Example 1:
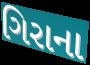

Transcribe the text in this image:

ગિરાના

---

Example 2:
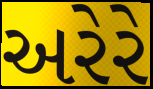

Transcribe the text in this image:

અરેરે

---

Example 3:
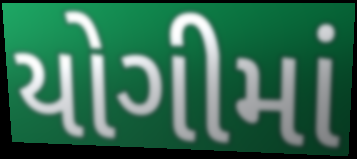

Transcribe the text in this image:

યોગીમાં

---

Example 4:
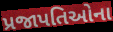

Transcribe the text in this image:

પ્રજાપતિઓના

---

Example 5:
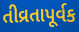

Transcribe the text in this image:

તીવ્રતાપૂર્વક